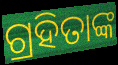
ଗ୍ରହିତାଙ୍କ